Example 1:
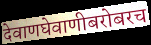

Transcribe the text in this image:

देवाणघेवाणीबरोबरच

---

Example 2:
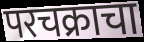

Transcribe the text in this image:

परचक्राचा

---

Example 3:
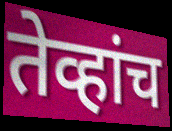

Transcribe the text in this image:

तेव्हांच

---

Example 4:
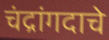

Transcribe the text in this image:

चंद्रांगदाचे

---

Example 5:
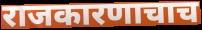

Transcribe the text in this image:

राजकारणाचाच